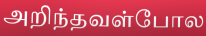
அறிந்தவள்போல